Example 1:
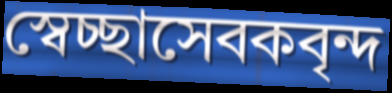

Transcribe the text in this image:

স্বেচ্ছাসেবকবৃন্দ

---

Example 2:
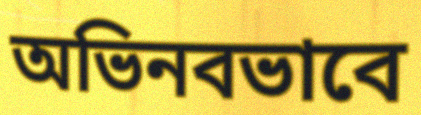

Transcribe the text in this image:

অভিনবভাবে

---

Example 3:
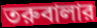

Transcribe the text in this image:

তরুবালার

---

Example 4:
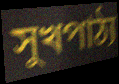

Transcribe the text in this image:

সুখপাঠ্য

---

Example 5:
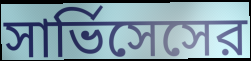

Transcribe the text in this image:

সার্ভিসেসের